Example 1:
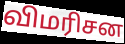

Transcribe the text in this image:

விமரிசன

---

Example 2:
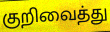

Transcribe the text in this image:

குறிவைத்து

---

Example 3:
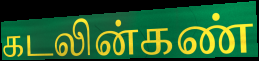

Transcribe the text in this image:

கடலின்கண்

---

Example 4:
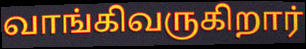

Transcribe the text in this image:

வாங்கிவருகிறார்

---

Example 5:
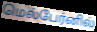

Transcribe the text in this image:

மெல்பேர்னில்